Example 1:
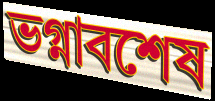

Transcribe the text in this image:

ভগ্নাবশেষ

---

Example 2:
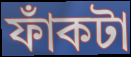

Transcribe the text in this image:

ফাঁকটা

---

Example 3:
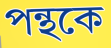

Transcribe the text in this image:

পন্থকে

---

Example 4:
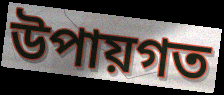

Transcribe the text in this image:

উপায়গত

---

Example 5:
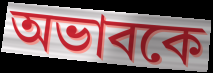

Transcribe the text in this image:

অভাবকে